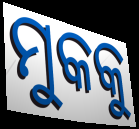
ମୁକକୁ